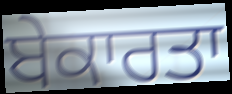
ਬੇਕਾਰਤਾ